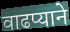
वाढप्याने